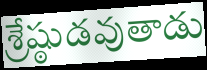
శ్రేష్ఠుడవుతాడు